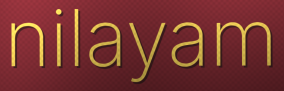
nilayam